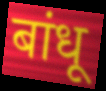
बांधू